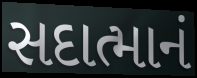
સદાત્માનં